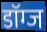
डॉग्ज